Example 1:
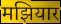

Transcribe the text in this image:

मझियार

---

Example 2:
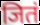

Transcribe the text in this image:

जितं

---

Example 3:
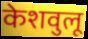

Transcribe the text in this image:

केशवुलू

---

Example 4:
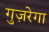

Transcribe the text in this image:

गुज़रेगा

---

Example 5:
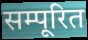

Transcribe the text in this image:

सम्पूरित